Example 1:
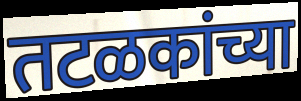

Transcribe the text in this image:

तटळकांच्या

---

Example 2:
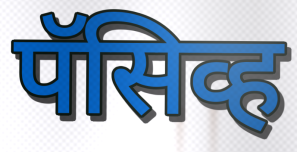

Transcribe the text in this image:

पॅसिव्ह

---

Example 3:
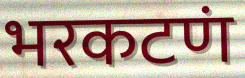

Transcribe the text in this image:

भरकटणं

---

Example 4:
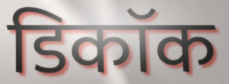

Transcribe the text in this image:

डिकॉक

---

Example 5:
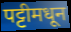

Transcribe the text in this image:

पट्टीमधून